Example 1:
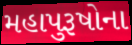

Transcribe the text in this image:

મહાપુરૂષોના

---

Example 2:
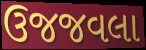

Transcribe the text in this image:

ઉજજવલા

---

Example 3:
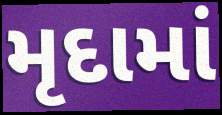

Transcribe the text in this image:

મૃદામાં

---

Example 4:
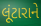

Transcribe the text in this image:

લૂંટારાને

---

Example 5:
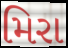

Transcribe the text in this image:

મિરા